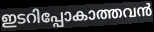
ഇടറിപ്പോകാത്തവൻ